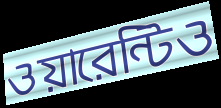
ওয়ারেন্টিও